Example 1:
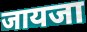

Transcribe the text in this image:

जायजा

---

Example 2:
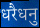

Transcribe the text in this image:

धरैधनु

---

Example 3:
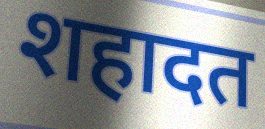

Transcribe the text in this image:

शहादत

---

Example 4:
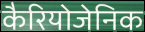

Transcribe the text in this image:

कैरियोजेनिक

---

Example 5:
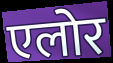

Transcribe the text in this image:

एलोर